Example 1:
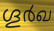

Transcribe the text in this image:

ഗൂർഖ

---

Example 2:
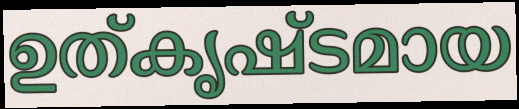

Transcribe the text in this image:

ഉത്കൃഷ്ടമായ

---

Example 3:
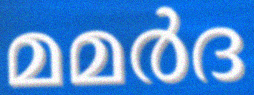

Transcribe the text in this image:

മമർദ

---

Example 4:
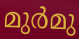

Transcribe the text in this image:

മുർമു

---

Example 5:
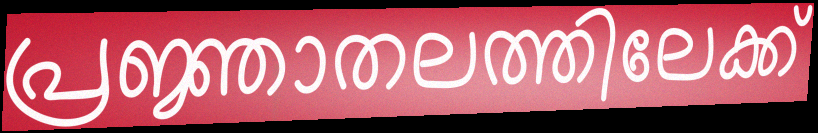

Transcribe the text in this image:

പ്രജ്ഞാതലത്തിലേക്ക്